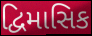
દ્વિમાસિક